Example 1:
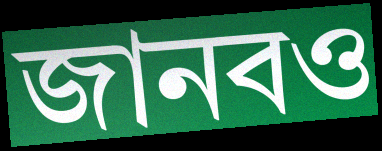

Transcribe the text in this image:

জানবও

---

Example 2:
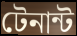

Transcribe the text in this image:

টেনান্ট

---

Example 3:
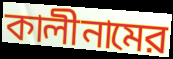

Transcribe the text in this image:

কালীনামের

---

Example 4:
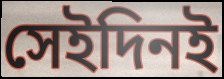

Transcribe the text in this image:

সেইদিনই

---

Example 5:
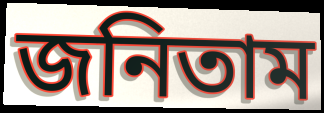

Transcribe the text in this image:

জনিতাম